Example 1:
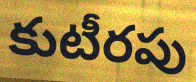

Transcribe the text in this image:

కుటీరపు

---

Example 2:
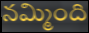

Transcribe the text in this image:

నమ్మింది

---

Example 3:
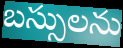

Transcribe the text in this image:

బస్సులను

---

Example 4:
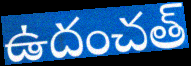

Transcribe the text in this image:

ఉదంచత్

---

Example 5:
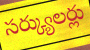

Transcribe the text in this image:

సర్క్యులర్లు